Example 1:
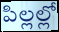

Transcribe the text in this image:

పిల్లల్లో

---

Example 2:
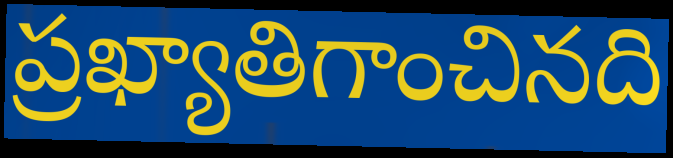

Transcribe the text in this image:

ప్రఖ్యాతిగాంచినది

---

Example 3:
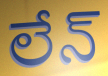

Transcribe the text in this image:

లేన్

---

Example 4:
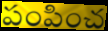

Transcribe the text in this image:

పంపించ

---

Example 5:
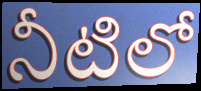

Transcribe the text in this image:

నీటిలో